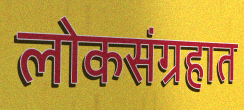
लोकसंग्रहात